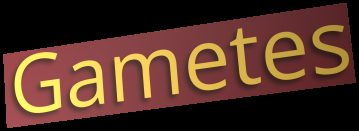
Gametes